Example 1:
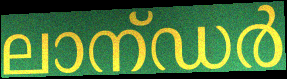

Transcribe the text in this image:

ലാന്ഡർ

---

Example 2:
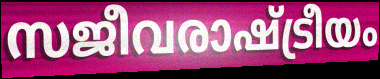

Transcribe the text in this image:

സജീവരാഷ്ട്രീയം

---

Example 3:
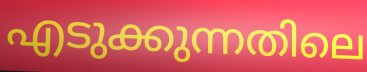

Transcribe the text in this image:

എടുക്കുന്നതിലെ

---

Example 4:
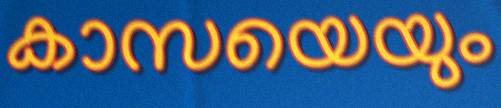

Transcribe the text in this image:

കാസയെയും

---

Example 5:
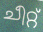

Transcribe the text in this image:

ചീറ്റ്